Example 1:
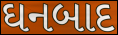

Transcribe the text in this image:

ઘનબાદ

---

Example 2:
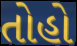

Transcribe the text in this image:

તોહો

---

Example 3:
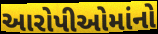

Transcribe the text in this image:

આરોપીઓમાંનો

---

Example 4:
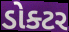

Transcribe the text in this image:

ડોક્ટર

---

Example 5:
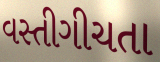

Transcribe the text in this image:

વસ્તીગીચતા